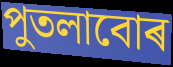
পুতলাবোৰ